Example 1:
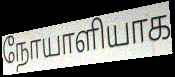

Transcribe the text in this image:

நோயாளியாக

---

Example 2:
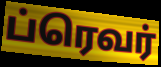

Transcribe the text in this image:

ப்ரெவர்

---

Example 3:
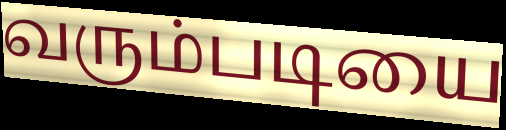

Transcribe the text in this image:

வரும்படியை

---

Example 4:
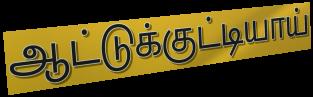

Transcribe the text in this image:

ஆட்டுக்குட்டியாய்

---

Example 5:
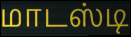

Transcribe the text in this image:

மாடஸ்டி